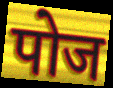
पोज